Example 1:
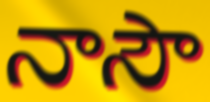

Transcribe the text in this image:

నాసౌ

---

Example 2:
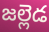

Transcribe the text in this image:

జల్లెడ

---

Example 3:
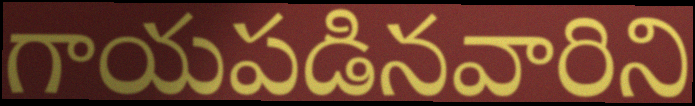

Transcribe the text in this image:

గాయపడినవారిని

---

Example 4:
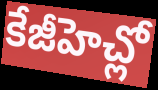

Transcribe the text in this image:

కేజీహెచ్లో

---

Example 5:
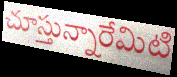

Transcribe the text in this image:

చూస్తున్నారేమిటి